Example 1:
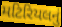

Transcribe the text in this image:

મટિરિયલનું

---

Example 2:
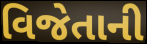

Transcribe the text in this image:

વિજેતાની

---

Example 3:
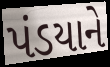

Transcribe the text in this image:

પંડયાને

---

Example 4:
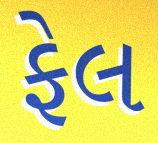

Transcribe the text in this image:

ફેલ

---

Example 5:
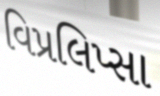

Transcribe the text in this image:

વિપ્રલિપ્સા